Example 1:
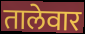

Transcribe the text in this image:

तालेवार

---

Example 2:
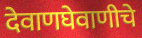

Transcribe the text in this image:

देवाणघेवाणीचे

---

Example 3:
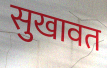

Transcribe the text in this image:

सुखावत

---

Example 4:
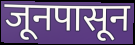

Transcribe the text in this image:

जूनपासून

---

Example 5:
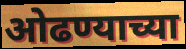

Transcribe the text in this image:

ओढण्याच्या